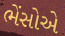
ભેંસોએ